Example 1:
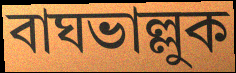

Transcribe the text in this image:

বাঘভাল্লুক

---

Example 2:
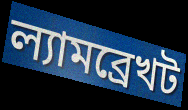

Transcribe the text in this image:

ল্যামব্রেখট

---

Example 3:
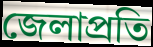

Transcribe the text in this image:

জেলাপ্রতি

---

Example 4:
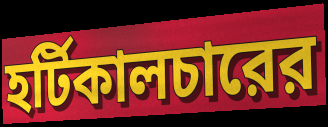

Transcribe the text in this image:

হর্টিকালচারের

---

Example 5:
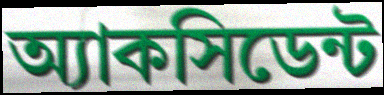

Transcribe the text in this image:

অ্যাকসিডেন্ট